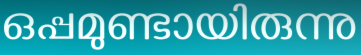
ഒപ്പമുണ്ടായിരുന്നു